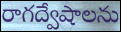
రాగద్వేషాలను